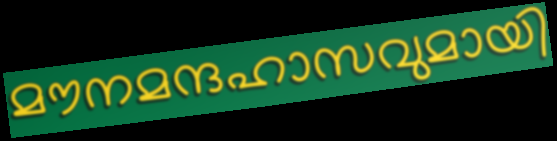
മൗനമന്ദഹാസവുമായി